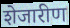
शेजारीण